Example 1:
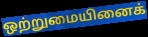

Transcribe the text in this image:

ஒற்றுமையினைக்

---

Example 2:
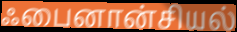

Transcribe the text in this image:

ஃபைனான்சியல்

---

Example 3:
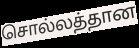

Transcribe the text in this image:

சொல்லத்தான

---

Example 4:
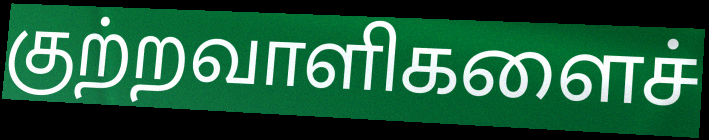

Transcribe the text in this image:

குற்றவாளிகளைச்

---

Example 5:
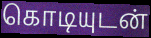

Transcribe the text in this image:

கொடியுடன்